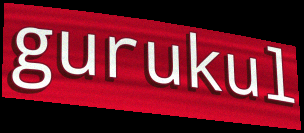
gurukul